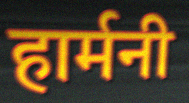
हार्मनी